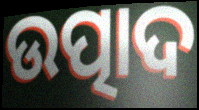
ଉତ୍ପାଦ